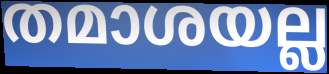
തമാശയല്ല